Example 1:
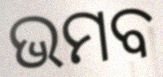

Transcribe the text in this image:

ଭମବ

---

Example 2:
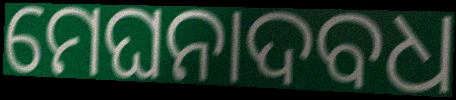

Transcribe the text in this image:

ମେଘନାଦବଧ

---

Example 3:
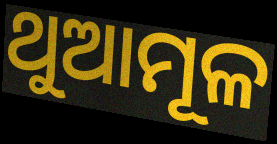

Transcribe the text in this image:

ଥୁଆମୂଳ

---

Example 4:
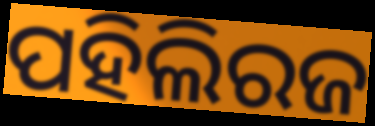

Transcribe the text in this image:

ପହିଲିରଜ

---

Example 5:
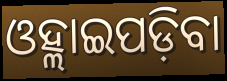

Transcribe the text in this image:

ଓହ୍ଲାଇପଡ଼ିବା